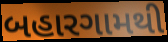
બહારગામથી